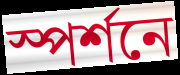
স্পর্শনে